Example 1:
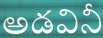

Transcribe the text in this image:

అడవినీ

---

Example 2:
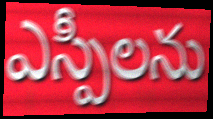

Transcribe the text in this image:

ఎస్పీలను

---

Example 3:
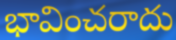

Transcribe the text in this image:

భావించరాదు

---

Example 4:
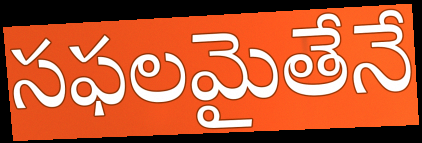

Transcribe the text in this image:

సఫలమైతేనే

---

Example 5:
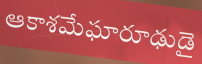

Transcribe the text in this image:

ఆకాశమేఘారూఢుడై